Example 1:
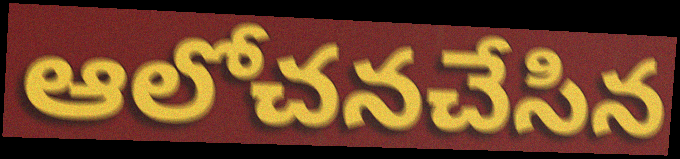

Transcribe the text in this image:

ఆలోచనచేసిన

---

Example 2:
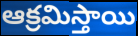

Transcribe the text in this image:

ఆక్రమిస్తాయి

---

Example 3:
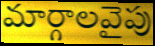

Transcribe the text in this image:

మార్గాలవైపు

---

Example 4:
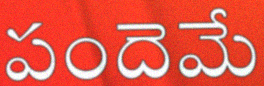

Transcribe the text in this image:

పందెమే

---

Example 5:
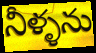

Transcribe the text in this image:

నీళ్ళను